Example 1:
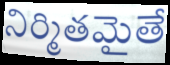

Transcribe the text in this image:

నిర్మితమైతే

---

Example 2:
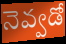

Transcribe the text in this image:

నెవ్వడో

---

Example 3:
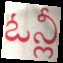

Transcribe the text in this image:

ఓన్లీ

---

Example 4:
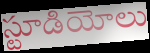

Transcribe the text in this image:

స్టూడియోలు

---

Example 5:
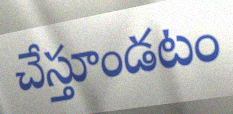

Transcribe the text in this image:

చేస్తూండటం